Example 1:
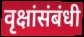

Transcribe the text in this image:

वृक्षांसंबंधी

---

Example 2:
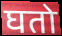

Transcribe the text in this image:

घतो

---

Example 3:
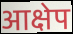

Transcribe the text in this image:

आक्षेप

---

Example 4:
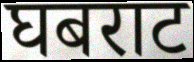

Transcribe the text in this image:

घबराट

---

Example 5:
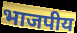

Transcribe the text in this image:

भाजपीय